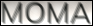
MOMA